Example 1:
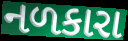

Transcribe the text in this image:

નળકારા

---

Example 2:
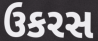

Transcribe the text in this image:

ઉકરસ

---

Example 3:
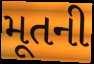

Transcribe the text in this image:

મૂતની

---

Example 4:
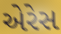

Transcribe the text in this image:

એરેસ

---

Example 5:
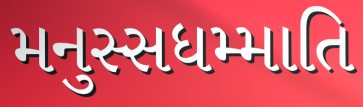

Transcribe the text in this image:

મનુસ્સધમ્માતિ